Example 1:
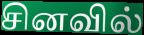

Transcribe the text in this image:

சினவில்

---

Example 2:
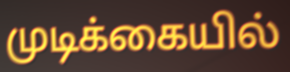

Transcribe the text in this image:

முடிக்கையில்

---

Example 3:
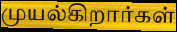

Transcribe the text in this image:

முயல்கிறார்கள்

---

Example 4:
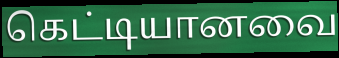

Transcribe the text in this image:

கெட்டியானவை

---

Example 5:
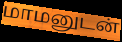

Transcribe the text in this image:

மாமனுடன்